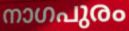
നാഗപുരം